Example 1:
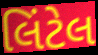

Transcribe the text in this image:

લિંટેલ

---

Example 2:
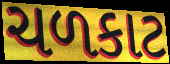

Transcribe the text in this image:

ચળકાટ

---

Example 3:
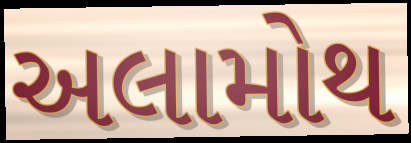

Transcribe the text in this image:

અલામોથ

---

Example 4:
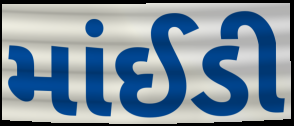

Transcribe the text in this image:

માંઈડી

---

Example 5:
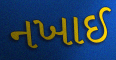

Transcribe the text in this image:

નખાઈ